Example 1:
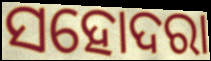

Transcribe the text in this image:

ସହୋଦରା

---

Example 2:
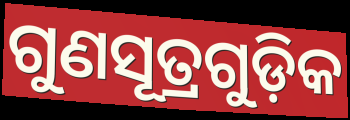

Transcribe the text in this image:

ଗୁଣସୂତ୍ରଗୁଡ଼ିକ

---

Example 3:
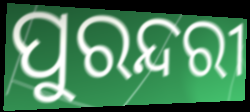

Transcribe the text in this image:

ପୁରନ୍ଦରୀ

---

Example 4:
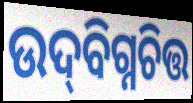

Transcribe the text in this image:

ଉଦ୍‌ବିଗ୍ନଚିତ୍ତ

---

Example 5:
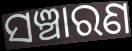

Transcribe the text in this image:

ସଞ୍ଚାରଣ